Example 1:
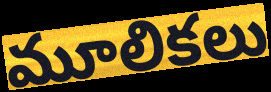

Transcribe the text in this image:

మూలికలు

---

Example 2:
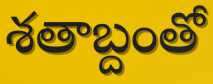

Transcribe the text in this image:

శతాబ్దంతో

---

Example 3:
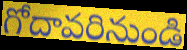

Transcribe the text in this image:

గోదావరినుండి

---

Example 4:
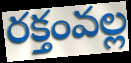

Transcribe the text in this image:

రక్తంవల్ల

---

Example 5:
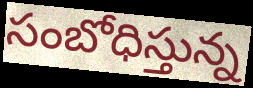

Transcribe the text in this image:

సంబోధిస్తున్న